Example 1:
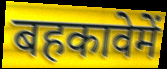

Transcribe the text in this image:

बहकावेमें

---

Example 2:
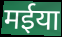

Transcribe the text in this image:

मईया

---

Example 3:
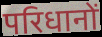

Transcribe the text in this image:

परिधानों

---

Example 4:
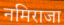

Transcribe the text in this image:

नमिराजा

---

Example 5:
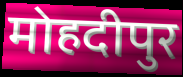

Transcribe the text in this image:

मोहदीपुर